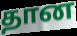
தான